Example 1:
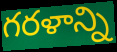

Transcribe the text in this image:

గరళాన్ని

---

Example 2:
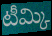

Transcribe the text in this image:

టీమ్కి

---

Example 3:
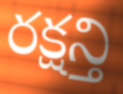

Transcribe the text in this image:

రక్షన్తి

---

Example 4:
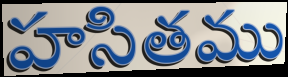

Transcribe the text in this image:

హసితము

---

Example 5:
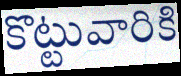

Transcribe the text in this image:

కొట్టువారికి